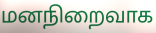
மனநிறைவாக